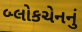
બ્લોકચેનનું